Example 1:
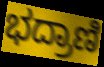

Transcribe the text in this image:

ಭದ್ರಾಣಿ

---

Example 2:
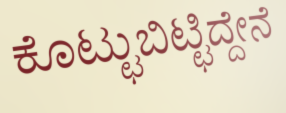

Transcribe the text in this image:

ಕೊಟ್ಟುಬಿಟ್ಟಿದ್ದೇನೆ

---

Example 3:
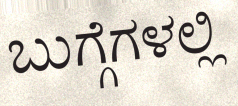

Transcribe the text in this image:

ಬುಗ್ಗೆಗಳಲ್ಲಿ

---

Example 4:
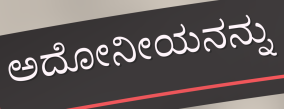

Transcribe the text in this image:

ಅದೋನೀಯನನ್ನು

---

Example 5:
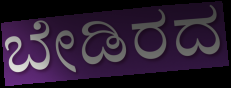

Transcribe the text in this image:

ಬೇಡಿರದ